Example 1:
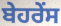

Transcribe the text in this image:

ਬੇਹਰੇਂਸ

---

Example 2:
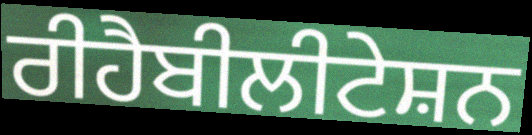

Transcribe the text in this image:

ਰੀਹੈਬੀਲੀਟੇਸ਼ਨ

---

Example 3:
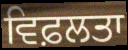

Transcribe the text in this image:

ਵਿਫ਼ਲਤਾ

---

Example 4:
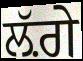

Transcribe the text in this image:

ਲ਼ੱਗੇ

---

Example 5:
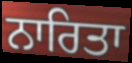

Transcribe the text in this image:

ਨਾਰਿਤਾ